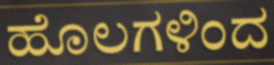
ಹೊಲಗಳಿಂದ